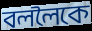
বললৈকে